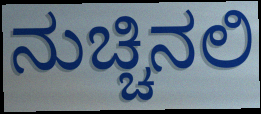
ನುಚ್ಚಿನಲಿ